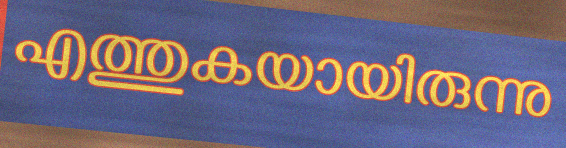
എത്തുകയായിരുന്നു